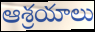
ఆశ్రయాలు